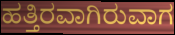
ಹತ್ತಿರವಾಗಿರುವಾಗ